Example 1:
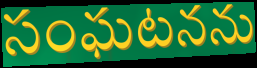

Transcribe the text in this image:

సంఘటనను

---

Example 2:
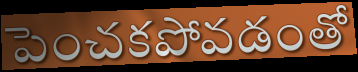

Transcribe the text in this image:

పెంచకపోవడంతో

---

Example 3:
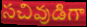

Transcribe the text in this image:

సచివుడిగా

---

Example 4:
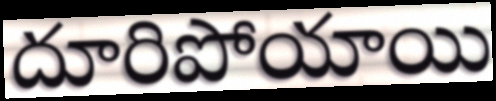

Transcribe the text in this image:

దూరిపోయాయి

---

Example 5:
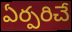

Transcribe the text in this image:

ఏర్పరిచే